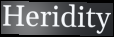
Heridity